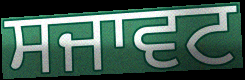
ਸਜਾਵਟ